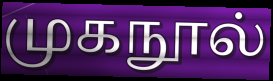
முகநூல்